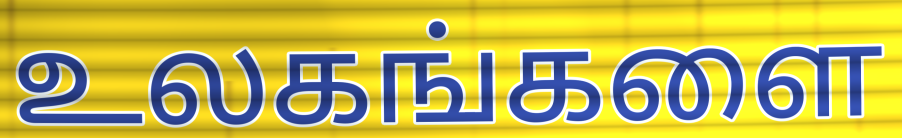
உலகங்களை